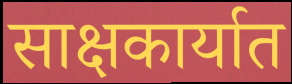
साक्षकार्यात